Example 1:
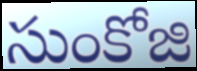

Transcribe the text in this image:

సుంకోజి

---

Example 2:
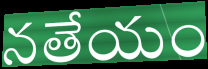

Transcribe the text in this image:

నతేయం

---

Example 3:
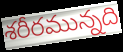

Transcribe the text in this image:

శరీరమున్నది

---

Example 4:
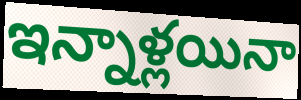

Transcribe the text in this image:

ఇన్నాళ్లయినా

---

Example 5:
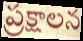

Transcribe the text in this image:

ప్రక్షాలన